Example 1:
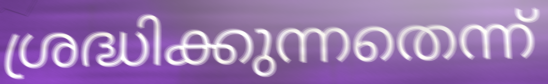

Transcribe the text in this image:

ശ്രദ്ധിക്കുന്നതെന്ന്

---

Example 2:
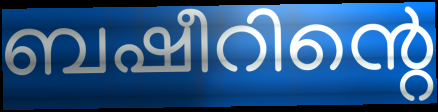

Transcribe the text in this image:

ബഷീറിന്റെ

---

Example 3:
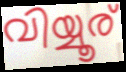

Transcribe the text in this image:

വിയ്യൂര്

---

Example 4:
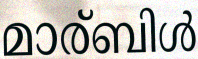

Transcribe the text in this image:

മാര്ബിൾ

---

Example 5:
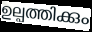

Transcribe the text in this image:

ഉല്പത്തിക്കും